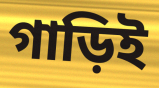
গাড়িই